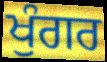
ਖੁੰਗਰ